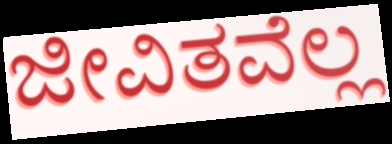
ಜೀವಿತವೆಲ್ಲ